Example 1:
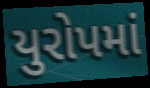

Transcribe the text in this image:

યુરોપમાં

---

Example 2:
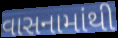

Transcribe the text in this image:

વાસનામાંથી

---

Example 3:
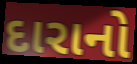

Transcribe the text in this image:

દારાનો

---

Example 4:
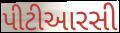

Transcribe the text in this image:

પીટીઆરસી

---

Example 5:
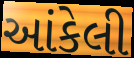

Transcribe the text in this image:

આંકેલી